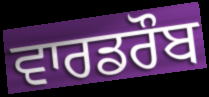
ਵਾਰਡਰੌਬ